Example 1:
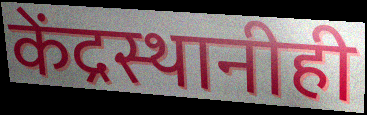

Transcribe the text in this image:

केंद्रस्थानीही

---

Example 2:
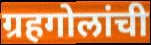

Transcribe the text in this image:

ग्रहगोलांची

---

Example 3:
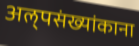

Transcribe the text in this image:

अल्पसंख्यांकाना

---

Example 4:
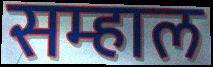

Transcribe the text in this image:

सम्हाल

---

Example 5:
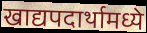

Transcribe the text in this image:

खाद्यपदार्थामध्ये